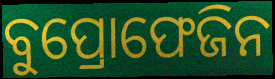
ବୁପ୍ରୋଫେଜିନ